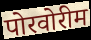
पोरवोरीम